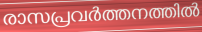
രാസപ്രവർത്തനത്തിൽ